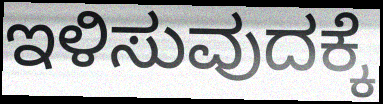
ಇಳಿಸುವುದಕ್ಕೆ